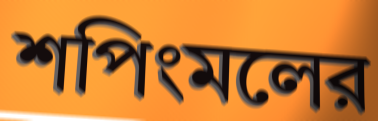
শপিংমলের